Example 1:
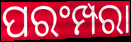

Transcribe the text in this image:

ପରଂମ୍ପରା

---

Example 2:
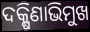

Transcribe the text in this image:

ଦକ୍ଷିଣାଭିମୁଖ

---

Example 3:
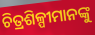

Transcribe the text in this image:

ଚିତ୍ରଶିଳ୍ପୀମାନଙ୍କୁ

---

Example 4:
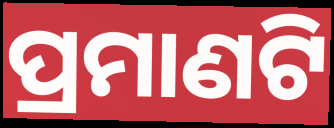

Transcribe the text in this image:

ପ୍ରମାଣଟି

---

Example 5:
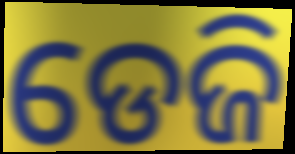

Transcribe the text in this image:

ଡେଜି